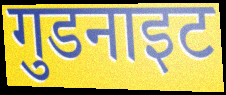
गुडनाइट